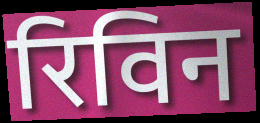
रिविन